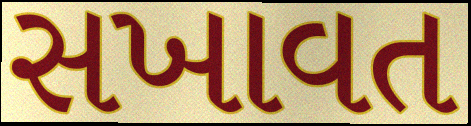
સખાવત